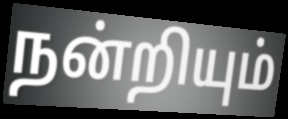
நன்றியும்